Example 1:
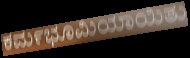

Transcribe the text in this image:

ಕರ್ಮಭೂಮಿಯಾಯಿತು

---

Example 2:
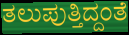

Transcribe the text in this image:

ತಲುಪುತ್ತಿದ್ದಂತೆ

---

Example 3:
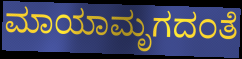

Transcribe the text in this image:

ಮಾಯಾಮೃಗದಂತೆ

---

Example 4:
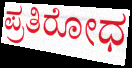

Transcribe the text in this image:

ಪ್ರತಿರೋಧ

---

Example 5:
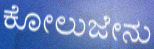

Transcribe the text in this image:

ಕೋಲುಜೇನು